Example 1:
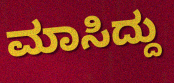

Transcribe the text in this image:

ಮಾಸಿದ್ದು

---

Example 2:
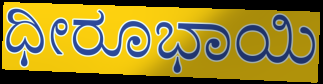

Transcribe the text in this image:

ಧೀರೂಭಾಯಿ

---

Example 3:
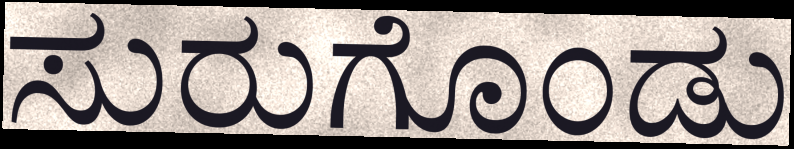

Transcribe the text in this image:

ಸುರುಗೊಂಡು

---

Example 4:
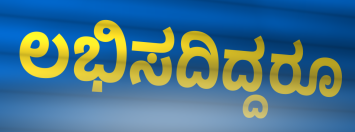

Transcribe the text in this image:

ಲಭಿಸದಿದ್ದರೂ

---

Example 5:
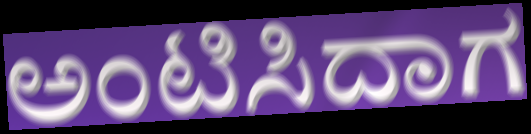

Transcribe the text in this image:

ಅಂಟಿಸಿದಾಗ